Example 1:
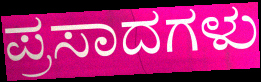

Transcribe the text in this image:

ಪ್ರಸಾದಗಳು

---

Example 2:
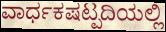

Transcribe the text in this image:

ವಾರ್ಧಕಷಟ್ಪದಿಯಲ್ಲಿ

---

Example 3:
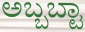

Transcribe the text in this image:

ಅಬ್ಬಬ್ಟಾ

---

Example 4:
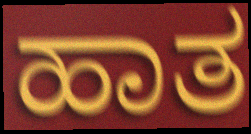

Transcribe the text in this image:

ಹಾತ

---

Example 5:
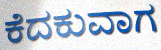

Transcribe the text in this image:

ಕೆದಕುವಾಗ